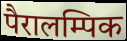
पैरालम्पिक